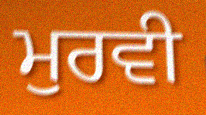
ਮੁਰਵੀ